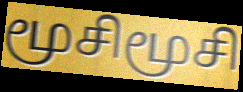
மூசிமூசி